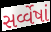
સર્વ્વેષાં